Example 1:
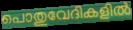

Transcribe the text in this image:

പൊതുവേദികളിൽ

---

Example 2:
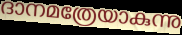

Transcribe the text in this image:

ദാനമത്രേയാകുന്നു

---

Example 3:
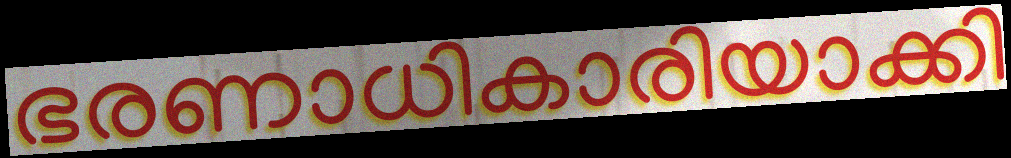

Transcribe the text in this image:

ഭരണാധികാരിയാക്കി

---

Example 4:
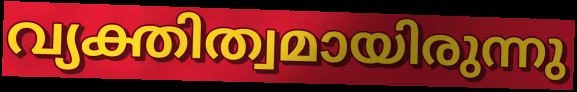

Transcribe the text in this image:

വ്യക്തിത്വമായിരുന്നു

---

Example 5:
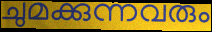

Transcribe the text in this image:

ചുമക്കുന്നവരും